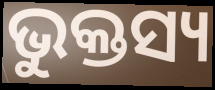
ଭୁକ୍ତସ୍ୟ